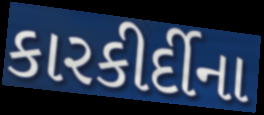
કારકીર્દીના